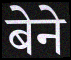
बेने